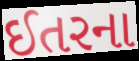
ઈતરના